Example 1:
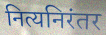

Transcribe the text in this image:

नित्यनिरंतर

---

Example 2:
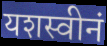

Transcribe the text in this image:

यशस्वीनं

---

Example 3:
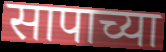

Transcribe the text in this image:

सापाच्या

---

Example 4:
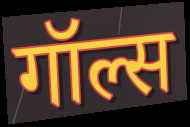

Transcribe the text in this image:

गॉल्स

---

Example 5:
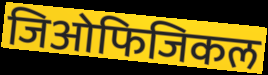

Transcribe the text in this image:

जिओफिजिकल